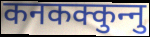
कनकक्कुन्नु